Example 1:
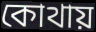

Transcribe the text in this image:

কোথায়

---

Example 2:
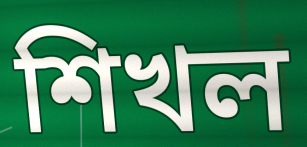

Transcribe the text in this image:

শিখল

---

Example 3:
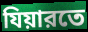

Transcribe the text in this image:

যিয়ারতে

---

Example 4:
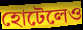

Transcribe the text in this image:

হোটেলেও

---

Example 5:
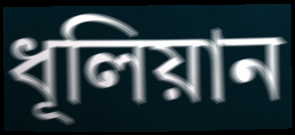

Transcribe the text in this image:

ধূলিয়ান